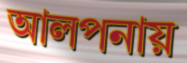
আলপনায়